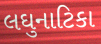
લઘુનાટિકા